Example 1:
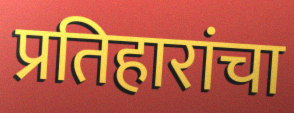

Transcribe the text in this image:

प्रतिहारांचा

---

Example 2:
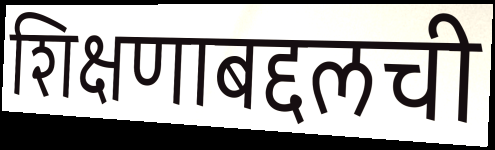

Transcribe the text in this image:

शिक्षणाबद्दलची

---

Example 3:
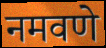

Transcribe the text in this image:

नमवणे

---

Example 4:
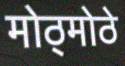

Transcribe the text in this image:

मोठ्मोठे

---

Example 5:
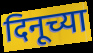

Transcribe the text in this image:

दिनूच्या